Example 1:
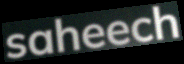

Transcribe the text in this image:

saheech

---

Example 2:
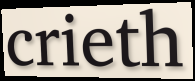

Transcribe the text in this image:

crieth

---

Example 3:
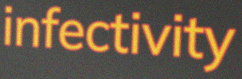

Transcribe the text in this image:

infectivity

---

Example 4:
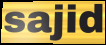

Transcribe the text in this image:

sajid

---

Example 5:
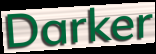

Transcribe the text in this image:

Darker